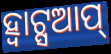
ହ୍ୱାଟ୍ସଆପ୍